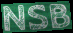
NSB